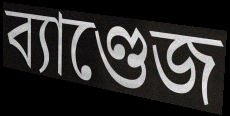
ব্যাণ্ডেজ